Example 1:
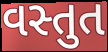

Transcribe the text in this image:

વસ્તુત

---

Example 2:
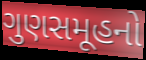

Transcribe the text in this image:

ગુણસમૂહનો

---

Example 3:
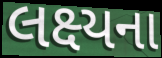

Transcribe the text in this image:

લક્ષ્યના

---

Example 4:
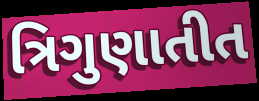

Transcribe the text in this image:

ત્રિગુણાતીત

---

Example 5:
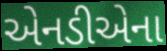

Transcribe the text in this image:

એનડીએના